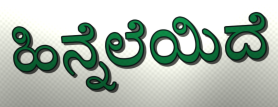
ಹಿನ್ನೆಲೆಯಿದೆ